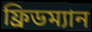
ফ্রিডম্যান